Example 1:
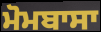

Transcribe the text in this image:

ਮੋਮਬਾਸਾ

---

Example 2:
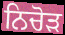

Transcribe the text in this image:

ਨਿਚੋਡ਼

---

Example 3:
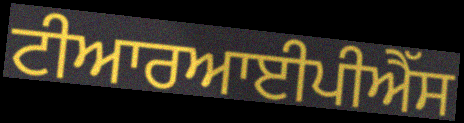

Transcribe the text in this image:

ਟੀਆਰਆਈਪੀਐੱਸ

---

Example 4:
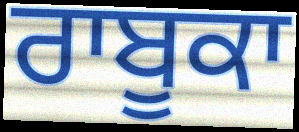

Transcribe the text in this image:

ਰਾਬੂਕਾ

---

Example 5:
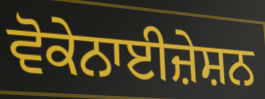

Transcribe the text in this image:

ਵੋਕੇਨਾਈਜ਼ੇਸ਼ਨ